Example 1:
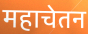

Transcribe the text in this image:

महाचेतन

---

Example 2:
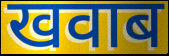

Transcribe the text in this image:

खवाब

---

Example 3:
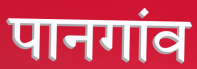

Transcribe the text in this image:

पानगांव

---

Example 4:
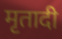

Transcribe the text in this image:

मृतादी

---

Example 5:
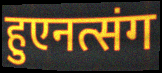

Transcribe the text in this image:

हुएनत्संग